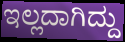
ಇಲ್ಲದಾಗಿದ್ದು